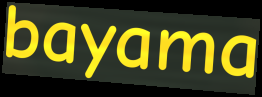
bayama